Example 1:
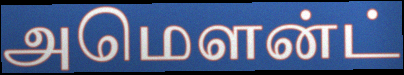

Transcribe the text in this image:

அமௌன்ட்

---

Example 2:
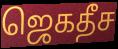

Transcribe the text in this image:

ஜெகதீச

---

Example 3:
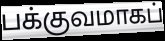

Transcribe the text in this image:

பக்குவமாகப்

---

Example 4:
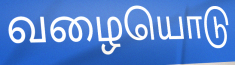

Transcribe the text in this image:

வழையொடு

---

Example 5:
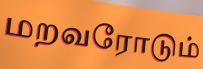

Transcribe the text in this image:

மறவரோடும்